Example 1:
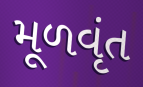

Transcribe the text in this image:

મૂળવૃંત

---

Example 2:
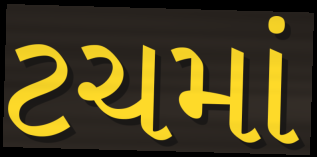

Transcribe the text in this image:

ટચમાં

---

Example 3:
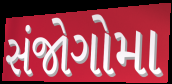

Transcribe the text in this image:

સંજોગોમા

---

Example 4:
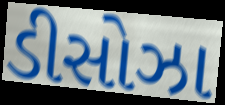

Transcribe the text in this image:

ડીસોઝા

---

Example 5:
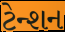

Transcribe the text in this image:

ટેન્શન